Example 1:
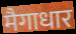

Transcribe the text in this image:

मैगाधार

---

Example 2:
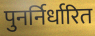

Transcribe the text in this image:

पुनर्निर्धारित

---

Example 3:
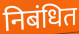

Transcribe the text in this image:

निबंधित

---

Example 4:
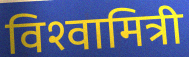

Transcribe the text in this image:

विश्वामित्री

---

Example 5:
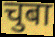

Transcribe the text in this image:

चुबा